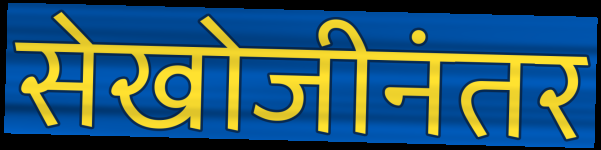
सेखोजीनंतर